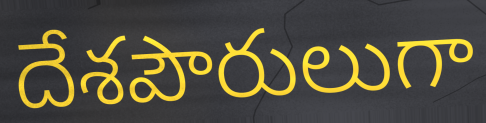
దేశపౌరులుగా